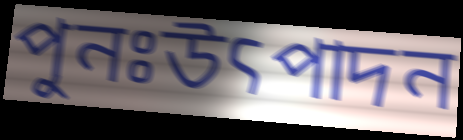
পুনঃউৎপাদন